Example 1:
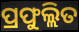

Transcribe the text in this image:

ପ୍ରଫୁଲ୍ଲିତ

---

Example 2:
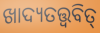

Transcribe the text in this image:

ଖାଦ୍ୟତତ୍ତ୍ୱବିତ୍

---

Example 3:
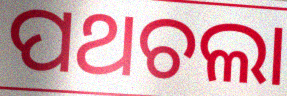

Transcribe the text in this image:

ପଥଚଲା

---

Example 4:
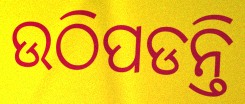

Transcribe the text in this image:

ଉଠିପଡନ୍ତି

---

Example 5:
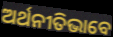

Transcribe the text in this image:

ଅର୍ଥନୀତିଭାବେ